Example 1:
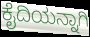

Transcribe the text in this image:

ಕೈದಿಯನ್ನಾಗಿ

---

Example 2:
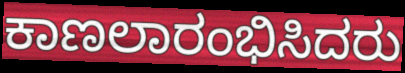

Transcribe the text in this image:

ಕಾಣಲಾರಂಭಿಸಿದರು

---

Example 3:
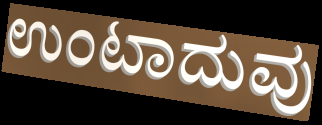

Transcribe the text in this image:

ಉಂಟಾದುವು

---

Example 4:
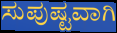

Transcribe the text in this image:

ಸುಪುಷ್ಟವಾಗಿ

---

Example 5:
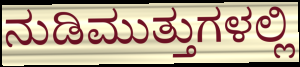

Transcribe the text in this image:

ನುಡಿಮುತ್ತುಗಳಲ್ಲಿ